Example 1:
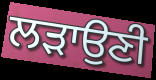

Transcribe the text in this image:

ਲੜਾਉਣੀ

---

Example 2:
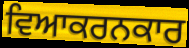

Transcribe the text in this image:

ਵਿਆਕਰਨਕਾਰ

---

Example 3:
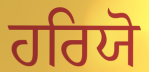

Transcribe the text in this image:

ਹਰਿਯੋ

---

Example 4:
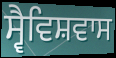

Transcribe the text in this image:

ਸ੍ਵੈਵਿਸ਼ਵਾਸ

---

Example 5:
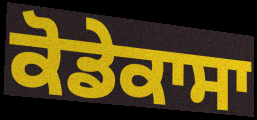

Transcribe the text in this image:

ਕੋਡੇਕਾਸਾ